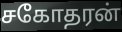
சகோதரன்